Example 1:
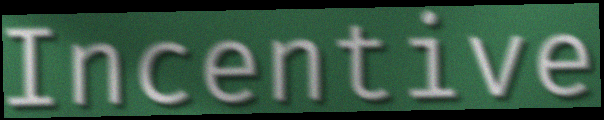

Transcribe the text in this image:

Incentive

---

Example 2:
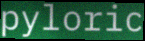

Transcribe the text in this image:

pyloric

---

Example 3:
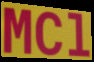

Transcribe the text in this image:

MCl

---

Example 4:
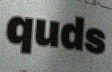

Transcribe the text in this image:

quds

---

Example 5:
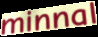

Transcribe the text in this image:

minnal